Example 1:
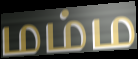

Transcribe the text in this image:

மம்ம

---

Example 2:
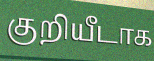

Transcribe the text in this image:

குறியீடாக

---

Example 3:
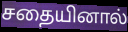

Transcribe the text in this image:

சதையினால்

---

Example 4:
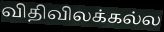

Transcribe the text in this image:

விதிவிலக்கல்ல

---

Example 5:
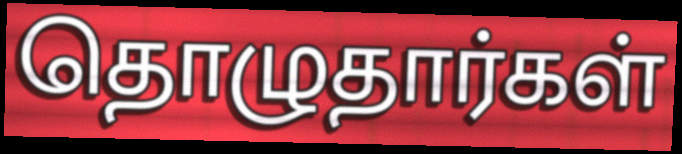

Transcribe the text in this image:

தொழுதார்கள்